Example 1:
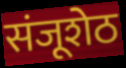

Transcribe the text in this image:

संजूशेठ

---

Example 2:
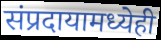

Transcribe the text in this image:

संप्रदायामध्येही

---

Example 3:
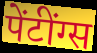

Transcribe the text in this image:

पेंटींग्स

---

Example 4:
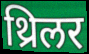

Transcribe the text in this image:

थ्रिलर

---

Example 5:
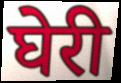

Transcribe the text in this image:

घेरी